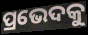
ପ୍ରଭେଦକୁ